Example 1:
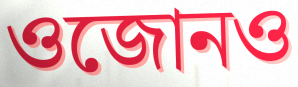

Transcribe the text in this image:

ওজোনও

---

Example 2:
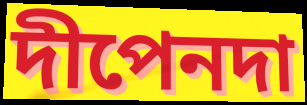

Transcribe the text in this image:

দীপেনদা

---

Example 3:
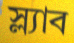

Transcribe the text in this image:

স্ল্যাব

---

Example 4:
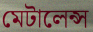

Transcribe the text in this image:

মেটালেন্স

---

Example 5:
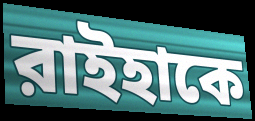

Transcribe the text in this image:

রাইহাকে